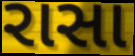
રાસા